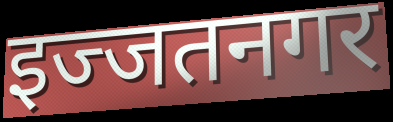
इज्जतनगर